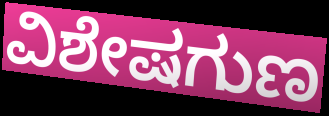
ವಿಶೇಷಗುಣ